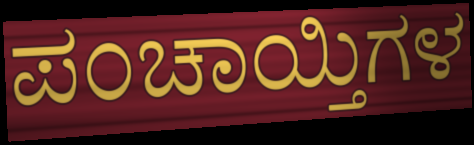
ಪಂಚಾಯ್ತಿಗಳ